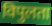
विपुलता